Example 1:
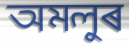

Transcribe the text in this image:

অমলুৰ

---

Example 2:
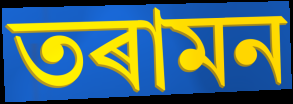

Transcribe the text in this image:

তৰামন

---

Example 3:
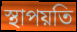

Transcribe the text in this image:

স্থাপয়তি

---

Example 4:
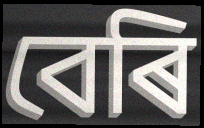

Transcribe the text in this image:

বেৰি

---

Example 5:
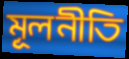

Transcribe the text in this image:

মূলনীতি